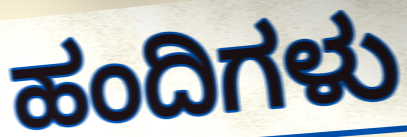
ಹಂದಿಗಳು